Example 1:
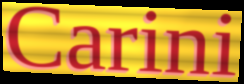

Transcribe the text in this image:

Carini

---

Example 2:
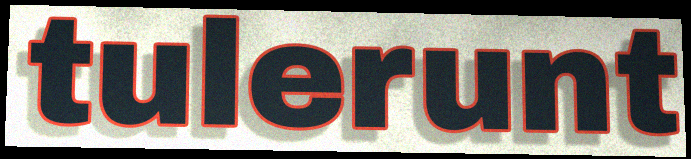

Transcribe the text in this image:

tulerunt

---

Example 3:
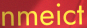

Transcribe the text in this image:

nmeict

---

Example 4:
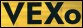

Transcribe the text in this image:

VEXo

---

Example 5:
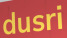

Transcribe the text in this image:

dusri